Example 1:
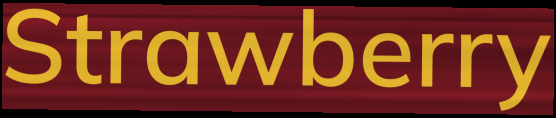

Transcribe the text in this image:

Strawberry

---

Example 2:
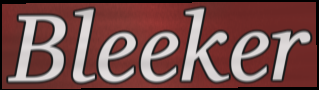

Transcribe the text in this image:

Bleeker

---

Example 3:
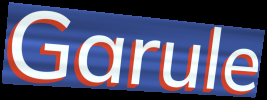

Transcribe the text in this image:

Garule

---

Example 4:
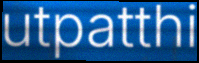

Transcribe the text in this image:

utpatthi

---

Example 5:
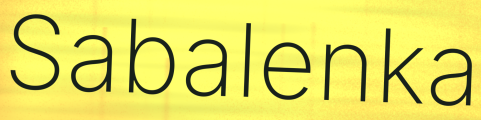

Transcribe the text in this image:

Sabalenka